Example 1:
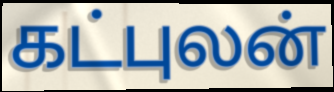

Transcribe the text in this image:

கட்புலன்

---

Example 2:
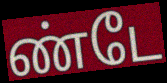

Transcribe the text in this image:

ண்டே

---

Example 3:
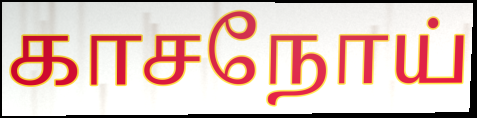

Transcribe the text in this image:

காசநோய்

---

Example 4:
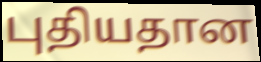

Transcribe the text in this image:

புதியதான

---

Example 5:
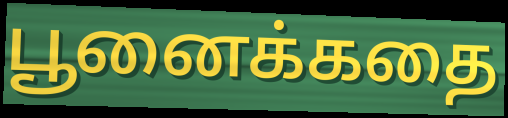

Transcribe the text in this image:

பூனைக்கதை